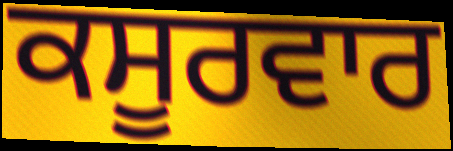
ਕਸੂਰਵਾਰ